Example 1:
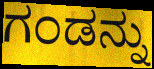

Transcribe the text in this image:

ಗಂಡನ್ನು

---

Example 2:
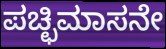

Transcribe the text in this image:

ಪಚ್ಛಿಮಾಸನೇ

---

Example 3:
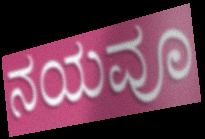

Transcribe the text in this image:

ನಯವೂ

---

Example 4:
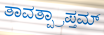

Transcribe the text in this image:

ತಾವತ್ಪ್ರಾಪ್ತಮ್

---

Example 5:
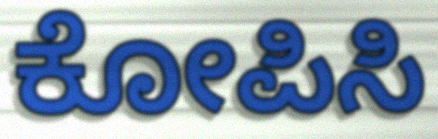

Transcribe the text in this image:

ಕೋಪಿಸಿ